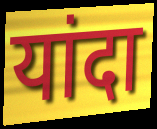
यांदा